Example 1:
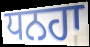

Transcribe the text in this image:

ਧਨਹਾ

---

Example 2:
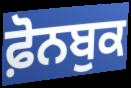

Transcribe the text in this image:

ਫ਼ੋਨਬੁਕ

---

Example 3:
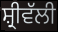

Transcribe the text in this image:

ਸ਼੍ਰੀਵੱਲੀ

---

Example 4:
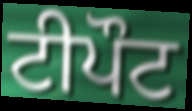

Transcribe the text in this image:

ਟੀਪੌਟ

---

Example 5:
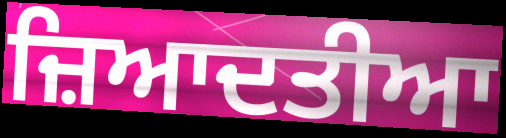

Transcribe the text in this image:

ਜ਼ਿਆਦਤੀਆ